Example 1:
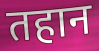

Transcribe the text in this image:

तहान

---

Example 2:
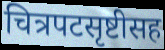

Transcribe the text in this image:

चित्रपटसृष्टीसह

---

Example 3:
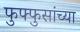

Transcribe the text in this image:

फुफ्फुसांच्या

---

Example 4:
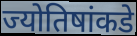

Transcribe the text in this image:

ज्योतिषांकडे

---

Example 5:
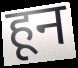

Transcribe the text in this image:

हून